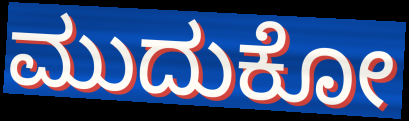
ಮುದುಕೋ